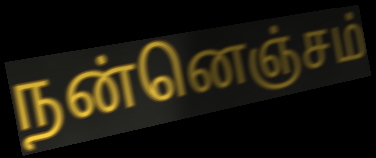
நன்னெஞ்சம்